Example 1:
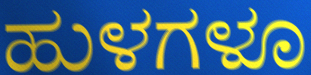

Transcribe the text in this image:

ಹುಳಗಳೂ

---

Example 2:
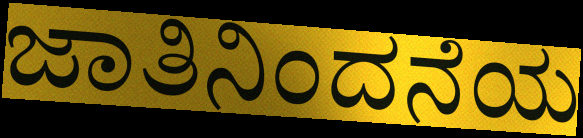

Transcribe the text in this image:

ಜಾತಿನಿಂದನೆಯ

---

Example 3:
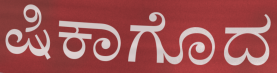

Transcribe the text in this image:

ಷಿಕಾಗೊದ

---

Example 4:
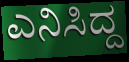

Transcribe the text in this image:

ಎನಿಸಿದ್ದ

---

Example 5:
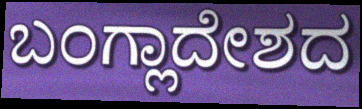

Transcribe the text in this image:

ಬಂಗ್ಲಾದೇಶದ